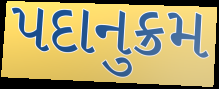
પદાનુક્રમ